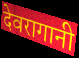
देवरागानी